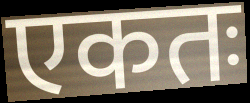
एकतः